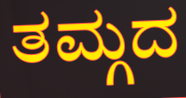
ತಮ್ಗದ